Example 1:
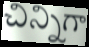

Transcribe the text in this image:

చిన్నిగా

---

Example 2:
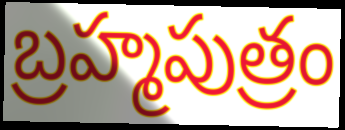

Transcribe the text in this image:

బ్రహ్మపుత్రం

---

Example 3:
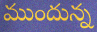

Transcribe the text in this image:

ముందున్న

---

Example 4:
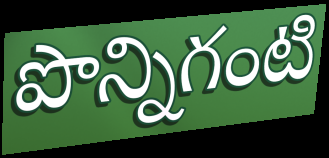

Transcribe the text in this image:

పొన్నిగంటి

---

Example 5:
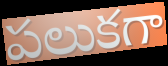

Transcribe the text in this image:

పలుకగా